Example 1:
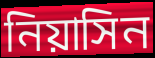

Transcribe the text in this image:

নিয়াসিন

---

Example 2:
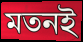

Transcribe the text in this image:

মতনই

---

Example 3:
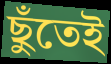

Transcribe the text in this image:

ছুঁতেই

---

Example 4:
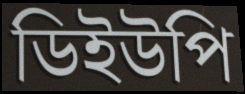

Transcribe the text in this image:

ডিইউপি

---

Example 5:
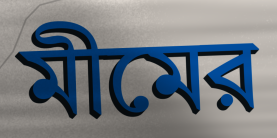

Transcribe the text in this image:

মীমের